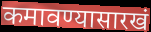
कमावण्यासारखं